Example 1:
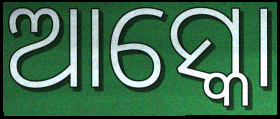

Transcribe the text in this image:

ଆସ୍କୋ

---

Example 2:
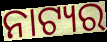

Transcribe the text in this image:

ନାଟ୍ୟର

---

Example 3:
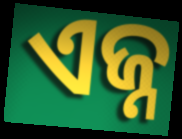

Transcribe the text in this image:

ଏଜ୍ନ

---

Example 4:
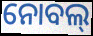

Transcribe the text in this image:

ନୋବଲ୍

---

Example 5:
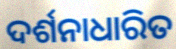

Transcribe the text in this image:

ଦର୍ଶନାଧାରିତ